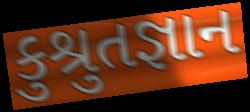
કુશ્રુતજ્ઞાન